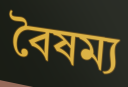
বৈষম্য